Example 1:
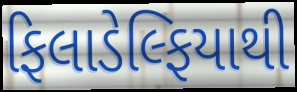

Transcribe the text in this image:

ફિલાડેલ્ફિયાથી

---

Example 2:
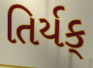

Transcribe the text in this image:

તિર્યક્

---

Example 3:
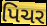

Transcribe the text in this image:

પિચર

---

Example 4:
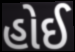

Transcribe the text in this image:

હોઈ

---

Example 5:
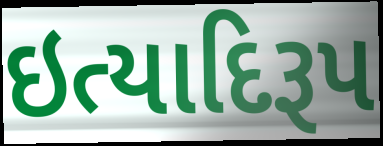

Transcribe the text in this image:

ઇત્યાદિરૂપ